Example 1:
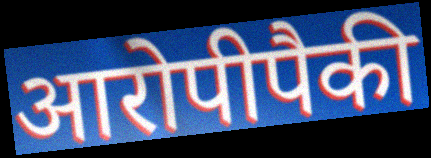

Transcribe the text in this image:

आरोपीपैकी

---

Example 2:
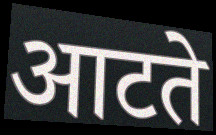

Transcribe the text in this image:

आटते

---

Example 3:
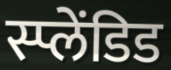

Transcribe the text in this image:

स्प्लेंडिड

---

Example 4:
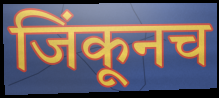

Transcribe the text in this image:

जिंकूनच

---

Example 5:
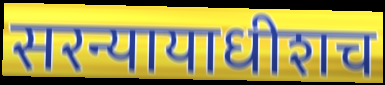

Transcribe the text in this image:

सरन्यायाधीशच